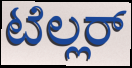
ಟೆಲ್ಲರ್